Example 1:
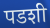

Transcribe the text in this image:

पडशी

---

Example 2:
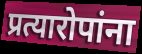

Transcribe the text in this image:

प्रत्यारोपांना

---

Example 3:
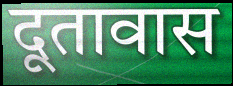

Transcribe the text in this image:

दूतावास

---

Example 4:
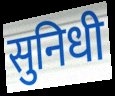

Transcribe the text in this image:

सुनिधी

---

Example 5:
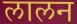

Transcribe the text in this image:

लालन